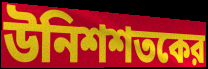
উনিশশতকের